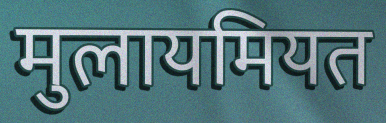
मुलायमियत